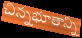
చిన్నభూతాన్ని